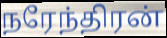
நரேந்திரன்